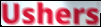
Ushers